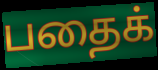
பதைக்